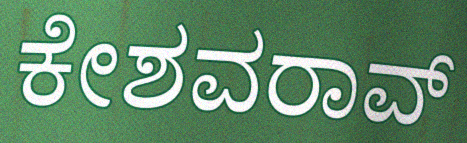
ಕೇಶವರಾವ್